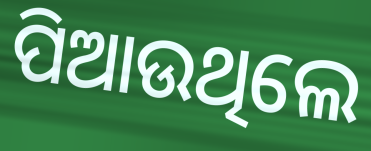
ପିଆଉଥିଲେ